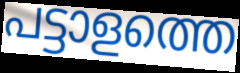
പട്ടാളത്തെ